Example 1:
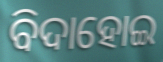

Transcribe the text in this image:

ବିଦାହୋଇ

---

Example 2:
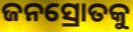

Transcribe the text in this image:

ଜନସ୍ରୋତକୁ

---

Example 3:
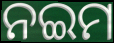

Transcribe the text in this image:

ନଇମ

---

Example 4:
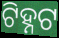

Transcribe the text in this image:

ଟିହ୍ନଟ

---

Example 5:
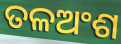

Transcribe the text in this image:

ତଳଅଂଶ